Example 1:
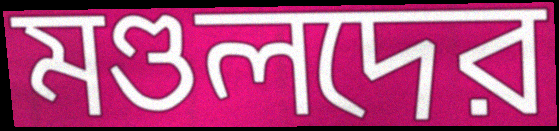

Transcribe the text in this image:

মণ্ডলদের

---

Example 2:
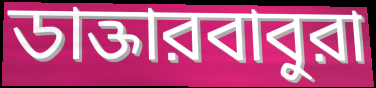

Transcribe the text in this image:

ডাক্তারবাবুরা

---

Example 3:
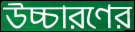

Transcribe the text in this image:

উচ্চারণের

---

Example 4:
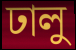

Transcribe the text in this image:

ঢালু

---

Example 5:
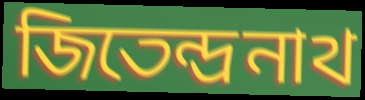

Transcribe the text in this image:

জিতেন্দ্রনাথ